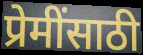
प्रेमींसाठी